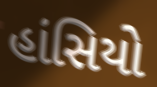
હાંસિયો